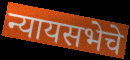
न्यायसभेचे